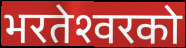
भरतेश्वरको